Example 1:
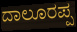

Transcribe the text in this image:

ದಾಲೂರಪ್ಪ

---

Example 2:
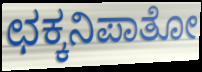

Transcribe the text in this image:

ಛಕ್ಕನಿಪಾತೋ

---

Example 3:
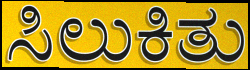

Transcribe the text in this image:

ಸಿಲುಕಿತು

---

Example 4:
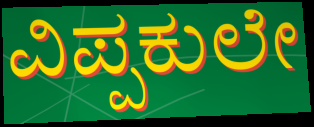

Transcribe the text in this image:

ವಿಪ್ಪಕುಲೇ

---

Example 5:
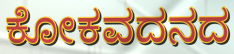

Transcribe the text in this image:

ಕೋಕವದನದ